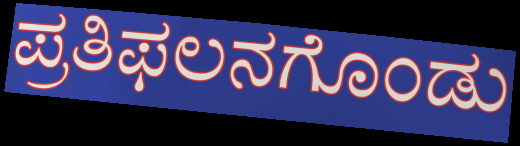
ಪ್ರತಿಫಲನಗೊಂಡು